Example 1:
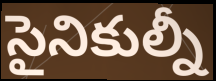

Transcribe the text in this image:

సైనికుల్నీ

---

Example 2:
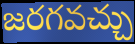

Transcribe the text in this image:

జరగవచ్చు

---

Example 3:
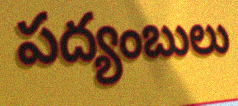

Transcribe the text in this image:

పద్యంబులు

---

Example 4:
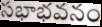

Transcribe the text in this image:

సభాభవనం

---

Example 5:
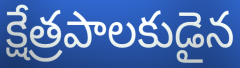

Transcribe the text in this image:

క్షేత్రపాలకుడైన